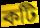
কটি